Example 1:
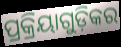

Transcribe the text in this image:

ପ୍ରକ୍ରିୟାଗୁଡ଼ିକର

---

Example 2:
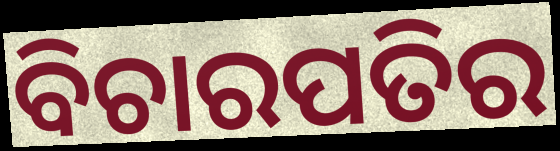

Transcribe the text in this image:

ବିଚାରପତିର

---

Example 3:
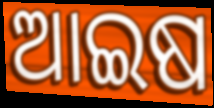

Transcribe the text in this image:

ଆଇଷ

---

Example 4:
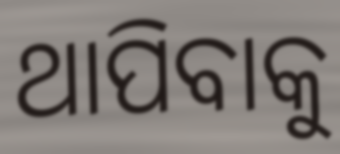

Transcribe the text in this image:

ଥାପିବାକୁ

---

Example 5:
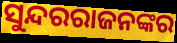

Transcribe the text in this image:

ସୁନ୍ଦରରାଜନଙ୍କର